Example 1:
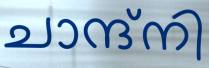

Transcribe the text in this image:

ചാന്ദ്നി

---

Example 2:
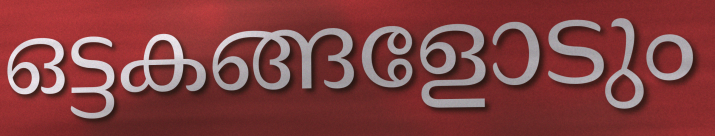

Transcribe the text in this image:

ഒട്ടകങ്ങളോടും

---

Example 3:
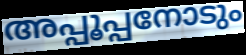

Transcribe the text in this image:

അപ്പൂപ്പനോടും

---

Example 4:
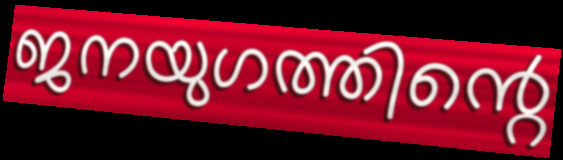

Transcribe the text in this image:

ജനയുഗത്തിന്റെ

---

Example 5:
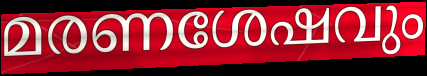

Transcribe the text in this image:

മരണശേഷവും